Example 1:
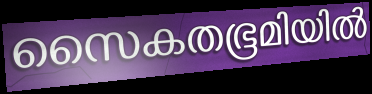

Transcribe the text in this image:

സൈകതഭൂമിയിൽ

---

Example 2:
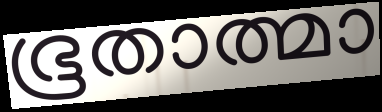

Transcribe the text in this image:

ഭൂതാത്മാ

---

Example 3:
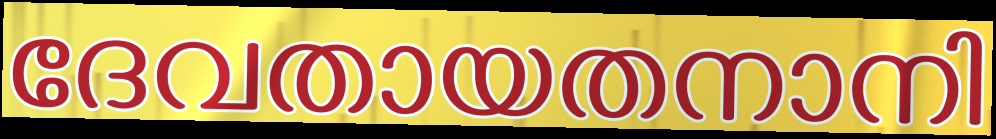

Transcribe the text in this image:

ദേവതായതനാനി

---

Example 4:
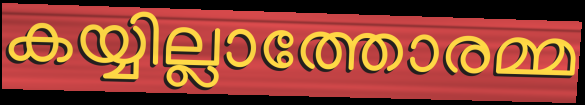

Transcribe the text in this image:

കയ്യില്ലാത്തോരമ്മ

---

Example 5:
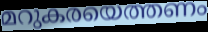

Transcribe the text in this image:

മറുകരയെത്തണം